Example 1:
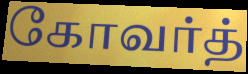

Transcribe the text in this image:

கோவர்த்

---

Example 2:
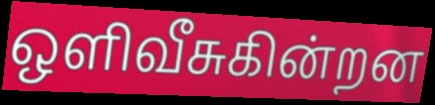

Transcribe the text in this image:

ஒளிவீசுகின்றன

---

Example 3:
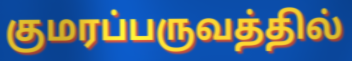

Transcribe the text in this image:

குமரப்பருவத்தில்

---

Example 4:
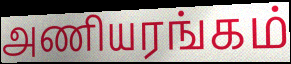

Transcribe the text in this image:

அணியரங்கம்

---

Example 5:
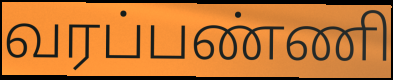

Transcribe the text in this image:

வரப்பண்ணி